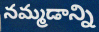
నమ్మడాన్ని